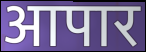
आपार